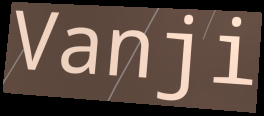
Vanji